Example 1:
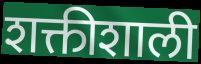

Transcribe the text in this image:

शक्तीशाली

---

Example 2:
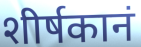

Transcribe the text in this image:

शीर्षकानं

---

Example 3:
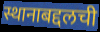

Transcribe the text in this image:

स्थानाबद्दलची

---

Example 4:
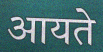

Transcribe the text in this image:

आयते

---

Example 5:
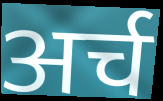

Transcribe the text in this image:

अर्च